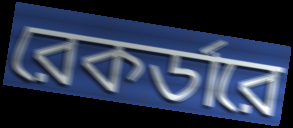
রেকর্ডারে